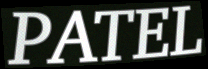
PATEL